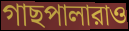
গাছপালারাও